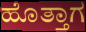
ಹೊತ್ತಾಗ